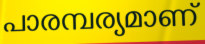
പാരമ്പര്യമാണ്